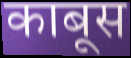
काबूस